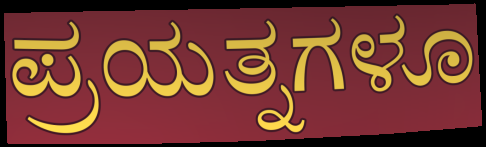
ಪ್ರಯತ್ನಗಳೂ